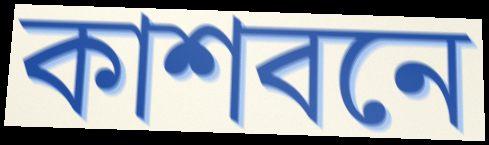
কাশবনে